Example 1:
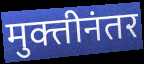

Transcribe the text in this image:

मुक्तीनंतर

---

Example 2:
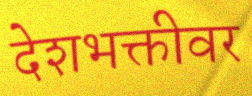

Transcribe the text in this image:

देशभक्तीवर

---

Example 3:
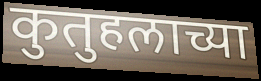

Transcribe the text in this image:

कुतुहलाच्या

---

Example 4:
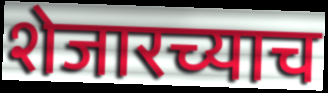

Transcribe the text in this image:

शेजारच्याच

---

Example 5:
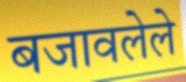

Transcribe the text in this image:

बजावलेले